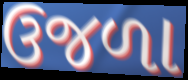
ઉજળા